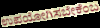
ಉಪಯೋಗಿಸಬೇಕೆಂಬ